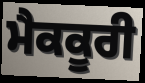
ਮੈਕਕੂਰੀ